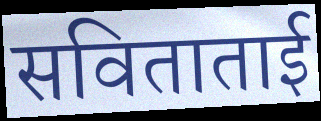
सविताताई